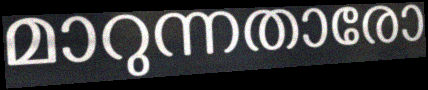
മാറുന്നതാരോ